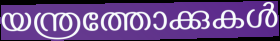
യന്ത്രത്തോക്കുകൾ